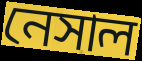
নেসাল